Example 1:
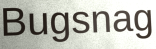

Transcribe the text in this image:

Bugsnag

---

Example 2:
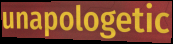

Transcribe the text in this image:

unapologetic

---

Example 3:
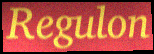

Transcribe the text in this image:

Regulon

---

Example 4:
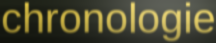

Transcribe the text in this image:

chronologie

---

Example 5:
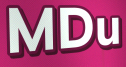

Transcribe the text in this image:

MDu